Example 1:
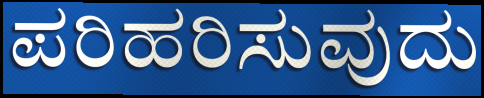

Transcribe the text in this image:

ಪರಿಹರಿಸುವುದು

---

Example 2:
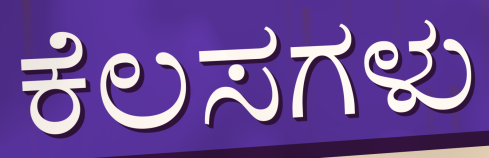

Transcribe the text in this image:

ಕೆಲಸಗಳು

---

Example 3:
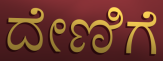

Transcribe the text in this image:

ದೇಣಿಗೆ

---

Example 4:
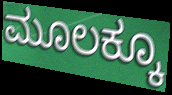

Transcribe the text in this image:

ಮೂಲಕ್ಕೂ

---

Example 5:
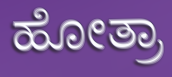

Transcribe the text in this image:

ಹೋತ್ರಾ